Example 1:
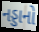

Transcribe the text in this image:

નડ્ડાનો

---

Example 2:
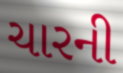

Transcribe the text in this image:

ચારની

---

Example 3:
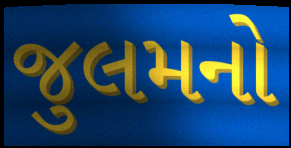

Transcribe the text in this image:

જુલમનો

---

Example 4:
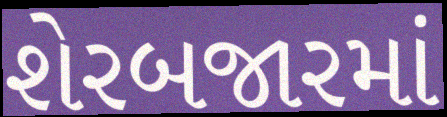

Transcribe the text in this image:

શેરબજારમાં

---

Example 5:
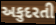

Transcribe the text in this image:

અકુદરતી